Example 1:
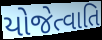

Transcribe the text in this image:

યોજેત્વાતિ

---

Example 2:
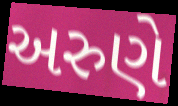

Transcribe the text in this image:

અરુણે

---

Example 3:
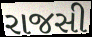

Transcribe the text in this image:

રાજસી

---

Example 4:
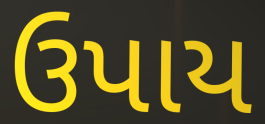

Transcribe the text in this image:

ઉપાય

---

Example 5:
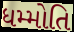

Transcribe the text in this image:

ધમ્મોતિ